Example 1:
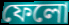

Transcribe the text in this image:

ফেলো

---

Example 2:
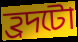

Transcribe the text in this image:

হ্ৰদটো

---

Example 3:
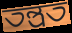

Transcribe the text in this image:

তন্ত্ৰত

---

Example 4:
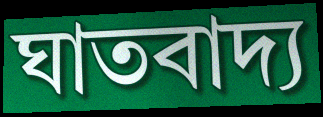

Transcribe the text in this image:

ঘাতবাদ্য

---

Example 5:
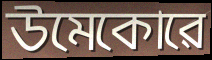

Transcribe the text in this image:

উমেকোৱে